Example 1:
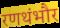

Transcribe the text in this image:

रणथंभौर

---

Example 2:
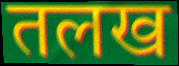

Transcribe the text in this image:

तलख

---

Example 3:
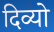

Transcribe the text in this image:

दिव्यो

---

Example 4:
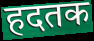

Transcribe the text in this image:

हदतक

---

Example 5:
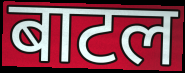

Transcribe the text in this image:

बाटल